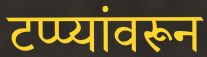
टप्प्यांवरून